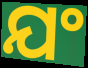
ଯଂ